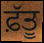
ਫ਼ੱਤੂ